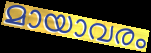
മായാവരം